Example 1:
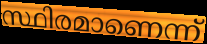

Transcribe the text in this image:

സ്ഥിരമാണെന്ന്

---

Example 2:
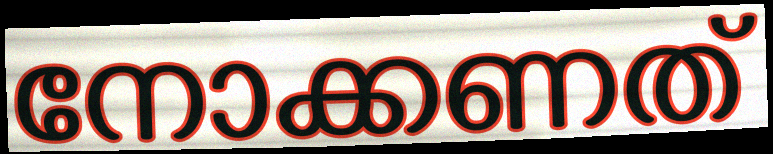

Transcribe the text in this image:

നോക്കണത്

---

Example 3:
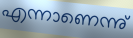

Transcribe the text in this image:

എന്നാണെന്നു്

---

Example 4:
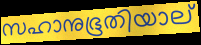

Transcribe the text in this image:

സഹാനുഭൂതിയാല്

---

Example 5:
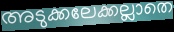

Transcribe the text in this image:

അടുക്കലേക്കല്ലാതെ